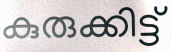
കുരുക്കിട്ട്